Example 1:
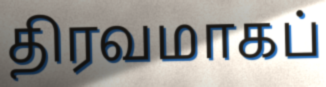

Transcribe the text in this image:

திரவமாகப்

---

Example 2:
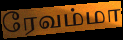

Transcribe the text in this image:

ரேவம்மா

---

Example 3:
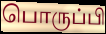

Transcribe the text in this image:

பொருப்பி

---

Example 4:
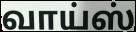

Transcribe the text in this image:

வாய்ஸ்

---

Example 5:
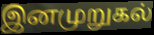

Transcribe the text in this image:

இனமுறுகல்